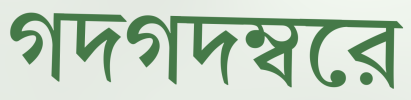
গদগদম্বরে